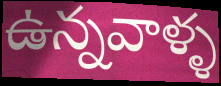
ఉన్నవాళ్ళ